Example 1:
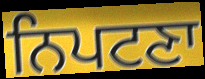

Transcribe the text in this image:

ਨਿਪਟਣਾ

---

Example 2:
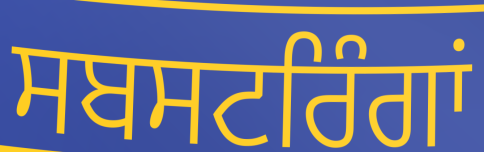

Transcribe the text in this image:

ਸਬਸਟਰਿੰਗਾਂ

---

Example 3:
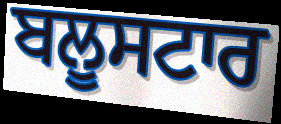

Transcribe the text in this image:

ਬਲੂਸਟਾਰ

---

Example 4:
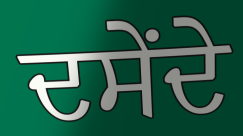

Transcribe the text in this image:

ਦਸੇਂਦੇ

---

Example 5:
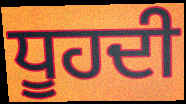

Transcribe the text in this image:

ਧੂਹਦੀ